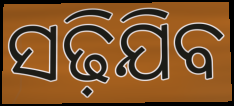
ସଢ଼ିଯିବ